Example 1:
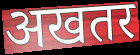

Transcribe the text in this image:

अखतर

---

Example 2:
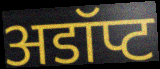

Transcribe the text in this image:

अडॉप्‍ट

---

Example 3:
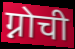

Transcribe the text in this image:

ग्नोची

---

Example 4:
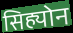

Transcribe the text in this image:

सिह्योन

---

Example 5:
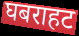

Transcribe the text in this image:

घबराहट